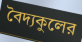
বৈদ্যকুলের